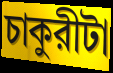
চাকুরীটা